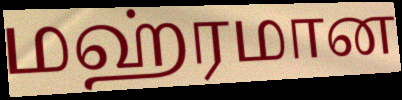
மஹ்ரமான